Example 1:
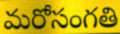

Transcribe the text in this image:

మరోసంగతి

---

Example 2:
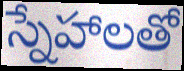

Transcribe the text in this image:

స్నేహాలతో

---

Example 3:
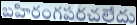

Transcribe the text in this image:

బహిరంగపరచలేదు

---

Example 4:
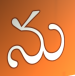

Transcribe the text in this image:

ను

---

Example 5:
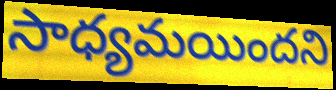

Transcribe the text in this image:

సాధ్యమయిందని